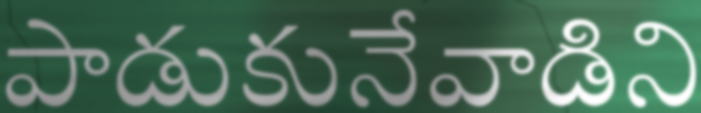
పాడుకునేవాడిని